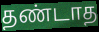
தண்டாத